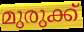
മുരുക്ക്